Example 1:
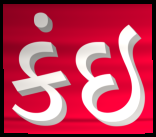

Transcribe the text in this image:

કંઇ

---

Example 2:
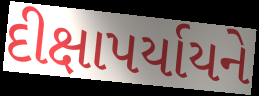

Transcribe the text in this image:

દીક્ષાપર્યાયને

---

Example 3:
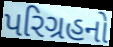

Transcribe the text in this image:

પરિગ્રહનો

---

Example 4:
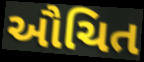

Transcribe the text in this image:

ઔચિત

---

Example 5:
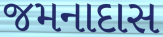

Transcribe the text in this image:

જમનાદાસ